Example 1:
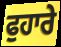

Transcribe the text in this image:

ਫੁਹਾਰੇ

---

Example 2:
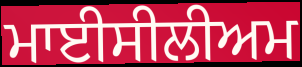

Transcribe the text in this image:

ਮਾਈਸੀਲੀਅਮ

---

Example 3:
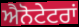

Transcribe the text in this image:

ਐਨੋਟੇਟਰਾਂ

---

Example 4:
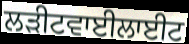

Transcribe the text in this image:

ਲੜੀਟਵਾਈਲਾਈਟ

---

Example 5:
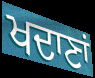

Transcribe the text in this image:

ਖਦਾਣਾਂ